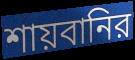
শায়বানির